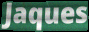
Jaques